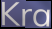
Kra